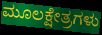
ಮೂಲಕ್ಷೇತ್ರಗಳು